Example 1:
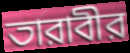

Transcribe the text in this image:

তারাবীর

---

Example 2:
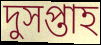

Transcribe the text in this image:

দুসপ্তাহ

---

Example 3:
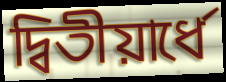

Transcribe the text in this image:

দ্বিতীয়ার্ধে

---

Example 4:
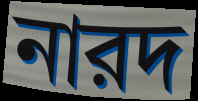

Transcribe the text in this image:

নারদ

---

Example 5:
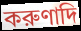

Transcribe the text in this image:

করুণাদি